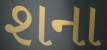
શના